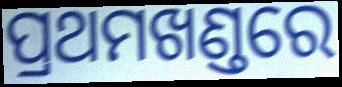
ପ୍ରଥମଖଣ୍ଡରେ